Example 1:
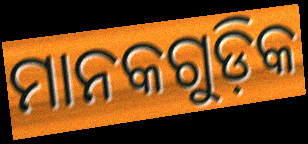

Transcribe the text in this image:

ମାନକଗୁଡ଼ିକ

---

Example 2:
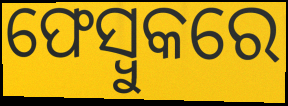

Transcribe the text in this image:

ଫେସ୍ବୁକରେ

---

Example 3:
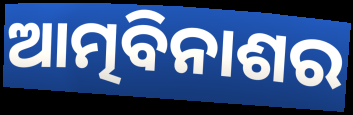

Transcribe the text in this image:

ଆତ୍ମବିନାଶର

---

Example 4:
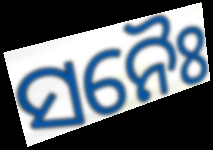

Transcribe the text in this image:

ସନୈଃ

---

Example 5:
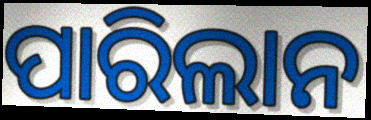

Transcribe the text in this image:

ପାରିଲାନ